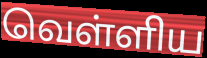
வெள்ளிய